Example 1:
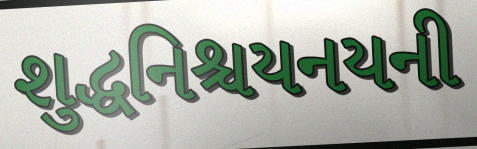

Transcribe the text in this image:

શુદ્ધનિશ્ચયનયની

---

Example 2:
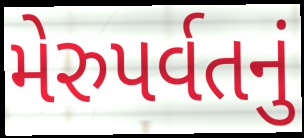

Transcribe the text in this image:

મેરુપર્વતનું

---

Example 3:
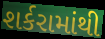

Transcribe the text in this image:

શર્કરામાંથી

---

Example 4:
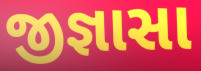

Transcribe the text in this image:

જીજ્ઞાસા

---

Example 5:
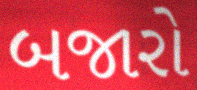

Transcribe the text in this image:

બજારો